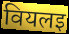
वियलइ